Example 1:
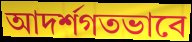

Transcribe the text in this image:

আদর্শগতভাবে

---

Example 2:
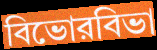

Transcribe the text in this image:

বিভোরবিভা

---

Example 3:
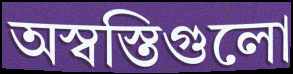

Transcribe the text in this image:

অস্বস্তিগুলো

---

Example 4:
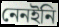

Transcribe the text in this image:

নেনইনি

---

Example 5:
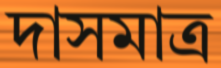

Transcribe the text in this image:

দাসমাত্র